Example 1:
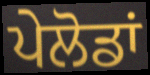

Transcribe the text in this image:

ਪੇਲੋਡਾਂ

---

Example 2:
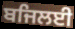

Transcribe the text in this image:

ਬਜਿਲਈ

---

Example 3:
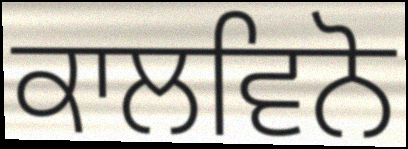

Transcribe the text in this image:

ਕਾਲਵਿਨੋ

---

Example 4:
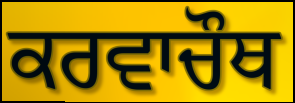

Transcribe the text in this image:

ਕਰਵਾਚੌਥ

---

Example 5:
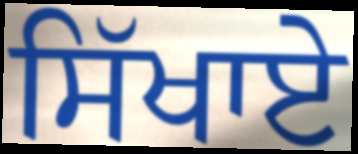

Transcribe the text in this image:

ਸਿੱਖਾਏ